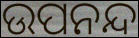
ଉପନନ୍ଦ